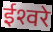
ईश्वरे